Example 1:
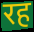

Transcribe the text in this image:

रह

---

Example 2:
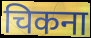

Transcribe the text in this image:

चिकना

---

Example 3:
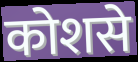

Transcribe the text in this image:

कोशसे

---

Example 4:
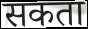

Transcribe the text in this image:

सकता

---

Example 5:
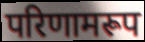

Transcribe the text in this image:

परिणामरूप